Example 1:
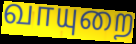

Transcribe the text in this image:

வாயுறை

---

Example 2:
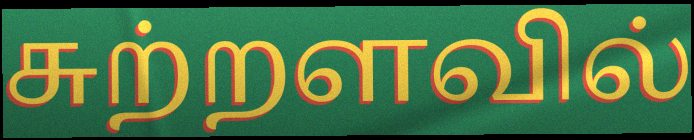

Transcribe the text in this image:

சுற்றளவில்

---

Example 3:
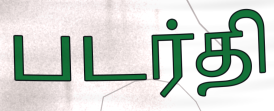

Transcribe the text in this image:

படர்தி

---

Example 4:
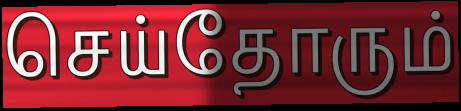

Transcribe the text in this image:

செய்தோரும்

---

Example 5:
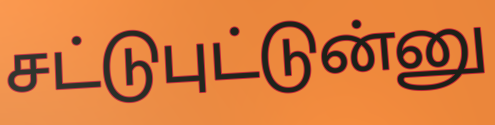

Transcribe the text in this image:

சட்டுபுட்டுன்னு